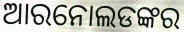
ଆରନୋଲଡଙ୍କର